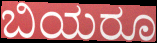
ಬಿಯರೂ